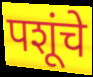
पशूंचे